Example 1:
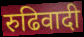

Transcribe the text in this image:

रुढिवादी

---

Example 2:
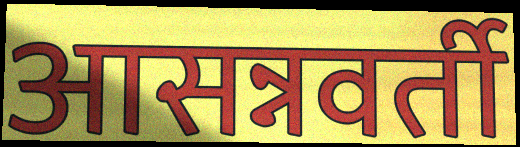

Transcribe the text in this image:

आसन्नवर्ती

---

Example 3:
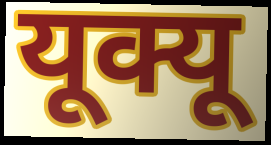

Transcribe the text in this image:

यूक्यू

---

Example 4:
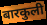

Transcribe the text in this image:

बारकुली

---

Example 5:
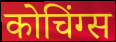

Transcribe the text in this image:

कोचिंग्स